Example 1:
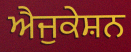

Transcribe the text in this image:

ਐਜੁਕੇਸ਼ਨ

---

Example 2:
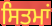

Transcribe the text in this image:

ਸਿਤਮਾਂ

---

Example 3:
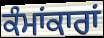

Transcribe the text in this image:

ਕੰਮਾਂਕਾਰਾਂ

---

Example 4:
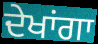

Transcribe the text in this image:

ਦੇਖਾਂਗਾ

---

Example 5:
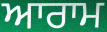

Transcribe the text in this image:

ਆਰਾਮ